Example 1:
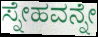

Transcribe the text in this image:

ಸ್ನೇಹವನ್ನೇ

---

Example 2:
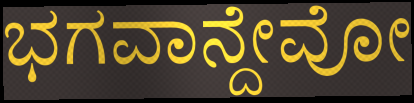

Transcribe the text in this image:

ಭಗವಾನ್ದೇವೋ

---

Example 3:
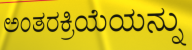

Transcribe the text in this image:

ಅಂತರಕ್ರಿಯೆಯನ್ನು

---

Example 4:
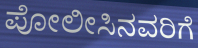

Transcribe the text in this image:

ಪೋಲೀಸಿನವರಿಗೆ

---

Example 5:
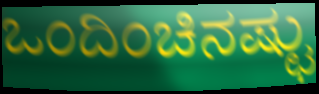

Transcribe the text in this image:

ಒಂದಿಂಚಿನಷ್ಟು